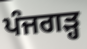
ਪੰਜਗੜ੍ਹ